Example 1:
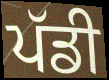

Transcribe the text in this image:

ਪੱਡੀ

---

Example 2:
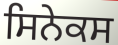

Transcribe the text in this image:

ਸਿਨੇਕਸ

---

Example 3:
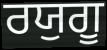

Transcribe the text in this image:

ਰਯੁਗੂ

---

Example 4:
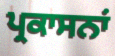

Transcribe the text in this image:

ਪ੍ਰਕਾਸਨਾਂ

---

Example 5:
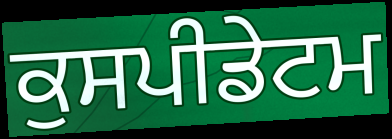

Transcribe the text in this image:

ਕੁਸਪੀਡੇਟਮ